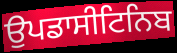
ਉਪਡਾਸੀਟਿਨਿਬ